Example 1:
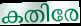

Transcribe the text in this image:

കതിരേ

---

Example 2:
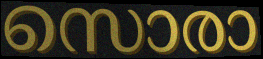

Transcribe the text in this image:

സൊരാ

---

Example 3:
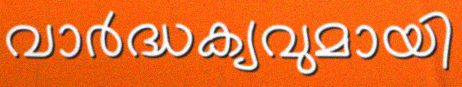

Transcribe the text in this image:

വാർദ്ധക്യവുമായി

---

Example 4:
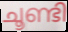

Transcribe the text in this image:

ചൂണ്ടി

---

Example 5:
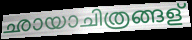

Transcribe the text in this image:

ഛായാചിത്രങ്ങള്